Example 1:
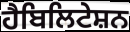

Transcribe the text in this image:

ਹੈਬਿਲਿਟੇਸ਼ਨ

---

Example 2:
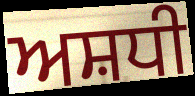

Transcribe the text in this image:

ਅਸ਼ਧੀ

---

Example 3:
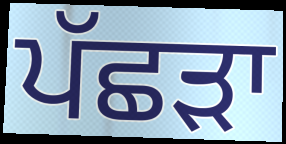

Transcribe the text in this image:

ਪੱਛੜਾ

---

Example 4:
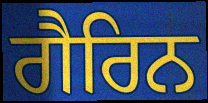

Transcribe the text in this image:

ਗੈਰਿਨ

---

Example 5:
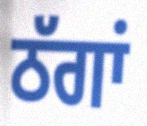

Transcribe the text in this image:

ਠੱਗਾਂ